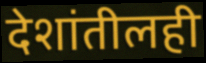
देशांतीलही